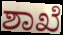
ಶಾಖೆ